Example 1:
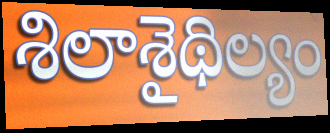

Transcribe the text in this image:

శిలాశైథిల్యం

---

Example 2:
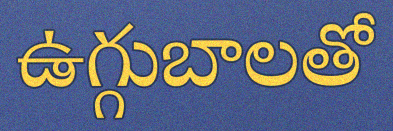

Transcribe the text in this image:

ఉగ్గుబాలతో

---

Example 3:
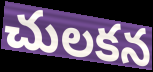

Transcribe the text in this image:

చులకన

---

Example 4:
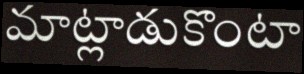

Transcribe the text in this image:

మాట్లాడుకొంటా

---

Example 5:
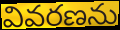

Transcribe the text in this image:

వివరణను